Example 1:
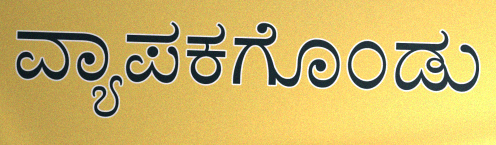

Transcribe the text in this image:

ವ್ಯಾಪಕಗೊಂಡು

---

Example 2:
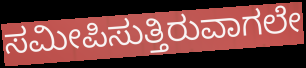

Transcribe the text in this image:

ಸಮೀಪಿಸುತ್ತಿರುವಾಗಲೇ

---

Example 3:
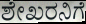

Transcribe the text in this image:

ಶೇಖರನಿಗೆ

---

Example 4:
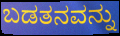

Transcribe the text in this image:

ಬಡತನವನ್ನು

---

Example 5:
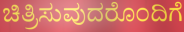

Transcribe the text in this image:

ಚಿತ್ರಿಸುವುದರೊಂದಿಗೆ